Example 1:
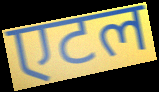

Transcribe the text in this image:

एटल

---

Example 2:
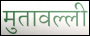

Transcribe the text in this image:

मुतावल्ली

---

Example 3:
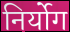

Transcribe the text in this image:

निर्योग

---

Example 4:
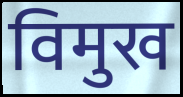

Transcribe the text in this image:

विमुख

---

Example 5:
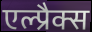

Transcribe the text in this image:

एल्प्रैक्स